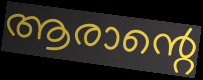
ആരാന്റെ